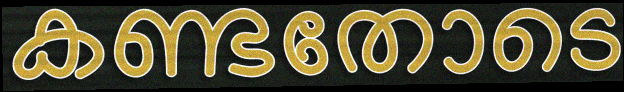
കണ്ടതോടെ